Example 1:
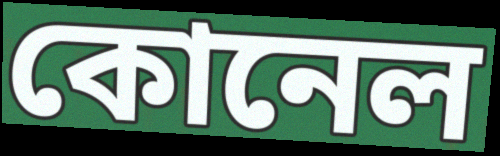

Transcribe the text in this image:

কোনেল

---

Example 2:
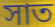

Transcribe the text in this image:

সাত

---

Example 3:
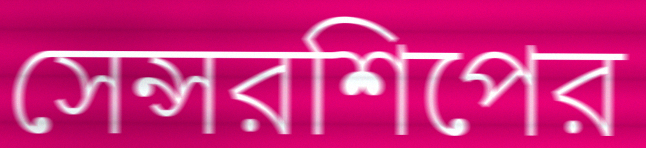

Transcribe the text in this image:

সেন্সরশিপের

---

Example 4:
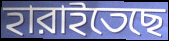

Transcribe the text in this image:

হারাইতেছে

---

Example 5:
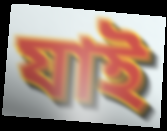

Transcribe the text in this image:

যাই